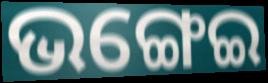
ଭଙ୍ଗେଇ